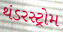
થંડરસ્ટ્રોમ